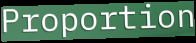
Proportion